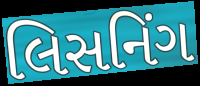
લિસનિંગ